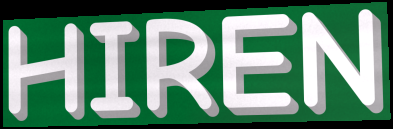
HIREN